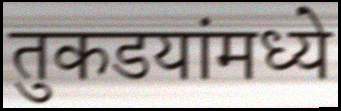
तुकडयांमध्ये